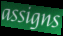
assigns